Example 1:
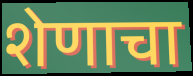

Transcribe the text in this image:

शेणाचा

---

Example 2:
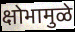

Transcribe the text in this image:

क्षोभामुळे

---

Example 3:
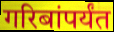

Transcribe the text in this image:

गरिबांपर्यंत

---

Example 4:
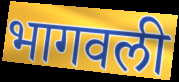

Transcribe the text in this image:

भागवली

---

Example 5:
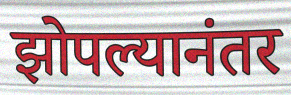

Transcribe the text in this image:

झोपल्यानंतर